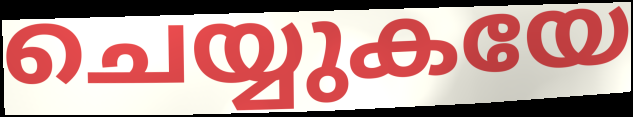
ചെയ്യുകയേ